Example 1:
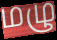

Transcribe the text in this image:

மழு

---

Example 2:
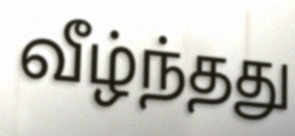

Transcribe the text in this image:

வீழ்ந்தது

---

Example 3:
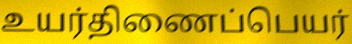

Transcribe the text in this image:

உயர்திணைப்பெயர்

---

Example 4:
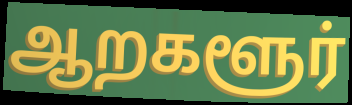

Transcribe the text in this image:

ஆறகளூர்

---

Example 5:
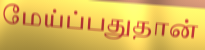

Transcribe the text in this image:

மேய்ப்பதுதான்